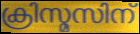
ക്രിസ്മസിന്